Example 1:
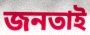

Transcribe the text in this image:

জনতাই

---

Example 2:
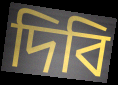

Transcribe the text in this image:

দিবি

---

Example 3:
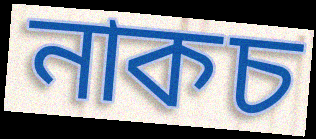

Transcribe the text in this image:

নাকচ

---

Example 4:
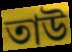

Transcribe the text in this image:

তাউ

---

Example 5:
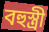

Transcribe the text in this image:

বহুস্ত্ৰী